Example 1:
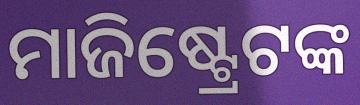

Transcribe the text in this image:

ମାଜିଷ୍ଟ୍ରେଟଙ୍କ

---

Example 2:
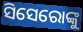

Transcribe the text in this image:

ସିସେରୋଙ୍କୁ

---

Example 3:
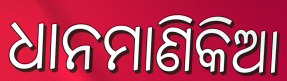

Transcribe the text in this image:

ଧାନମାଣିକିଆ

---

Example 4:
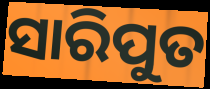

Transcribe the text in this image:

ସାରିପୁତ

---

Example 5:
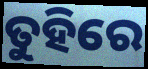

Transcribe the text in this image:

ତୁହିରେ